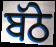
ਬੱਠੇ